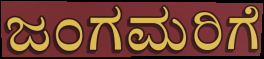
ಜಂಗಮರಿಗೆ